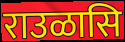
राउळासि